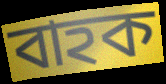
বাহক